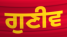
ਗੁਣੀਵ